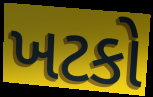
ખટકો